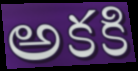
అకకి